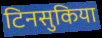
टिनसुकिया